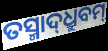
ତସ୍ମାଦ୍‌ଧ୍ରୁବମ୍